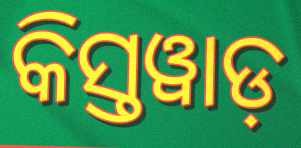
କିସ୍ତୱାଡ଼